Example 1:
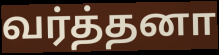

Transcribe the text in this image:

வர்த்தனா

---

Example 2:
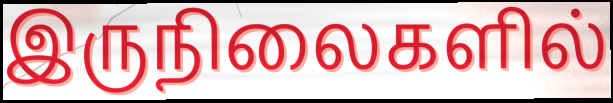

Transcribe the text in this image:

இருநிலைகளில்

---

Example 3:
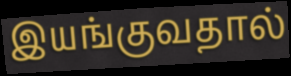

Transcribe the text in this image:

இயங்குவதால்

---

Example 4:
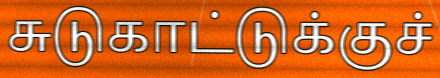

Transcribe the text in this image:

சுடுகாட்டுக்குச்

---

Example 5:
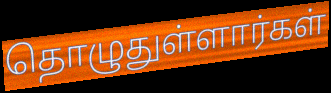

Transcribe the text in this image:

தொழுதுள்ளார்கள்